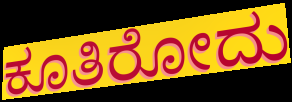
ಕೂತಿರೋದು